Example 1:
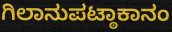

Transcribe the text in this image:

ಗಿಲಾನುಪಟ್ಠಾಕಾನಂ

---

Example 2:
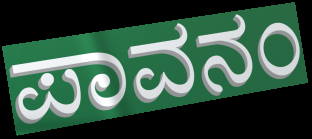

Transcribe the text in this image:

ಪಾವನಂ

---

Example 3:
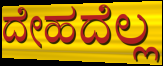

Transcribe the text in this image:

ದೇಹದೆಲ್ಲ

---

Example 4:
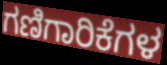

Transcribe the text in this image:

ಗಣಿಗಾರಿಕೆಗಳ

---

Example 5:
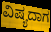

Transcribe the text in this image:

ವಿಷ್ಯದಾಗ